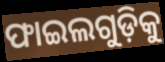
ଫାଇଲଗୁଡ଼ିକୁ